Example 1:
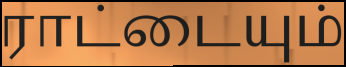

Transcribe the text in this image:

ராட்டையும்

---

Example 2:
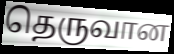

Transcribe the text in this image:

தெருவான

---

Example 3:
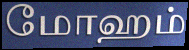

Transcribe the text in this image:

மோஹம்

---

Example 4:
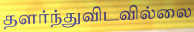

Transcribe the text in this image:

தளர்ந்துவிடவில்லை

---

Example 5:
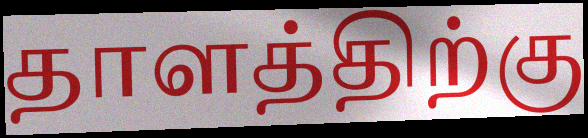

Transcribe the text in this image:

தாளத்திற்கு